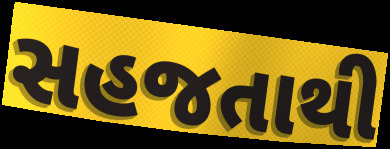
સહજતાથી